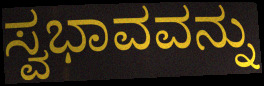
ಸ್ವಭಾವವನ್ನು